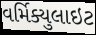
વર્મિક્યુલાઇટ